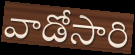
వాడోసారి